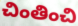
చింతించి